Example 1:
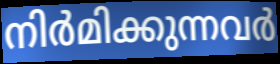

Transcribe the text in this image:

നിർമിക്കുന്നവർ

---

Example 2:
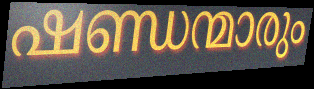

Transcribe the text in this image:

ഷണ്ഡന്മാരും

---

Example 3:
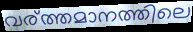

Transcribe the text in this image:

വര്ത്തമാനത്തിലെ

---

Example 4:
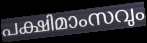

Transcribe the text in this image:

പക്ഷിമാംസവും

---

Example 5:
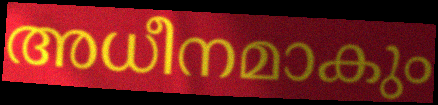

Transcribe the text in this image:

അധീനമാകും